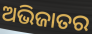
ଅଭିଜାତର